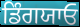
ਡਿੰਗਯਾਓ